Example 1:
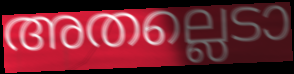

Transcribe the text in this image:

അതല്ലെടാ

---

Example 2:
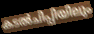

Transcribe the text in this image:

കടൽചിപ്പിയിലും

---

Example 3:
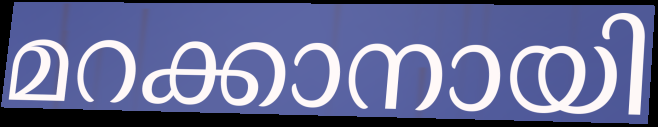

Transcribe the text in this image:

മറക്കാനായി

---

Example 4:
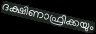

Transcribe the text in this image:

ദക്ഷിണാഫ്രിക്കയും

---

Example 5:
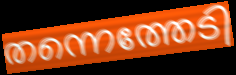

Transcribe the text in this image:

തന്നെത്തേടി